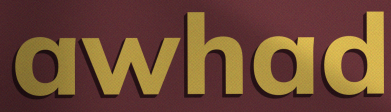
awhad